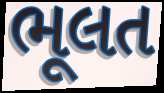
ભૂલત